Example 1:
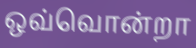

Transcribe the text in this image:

ஒவ்வொன்றா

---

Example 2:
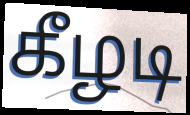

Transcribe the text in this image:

கீழடி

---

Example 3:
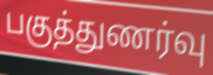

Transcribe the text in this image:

பகுத்துணர்வு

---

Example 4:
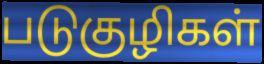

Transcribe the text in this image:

படுகுழிகள்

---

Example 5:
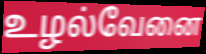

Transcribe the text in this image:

உழல்வேனை